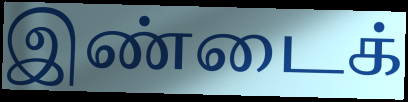
இண்டைக்